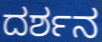
ದರ್ಶನ